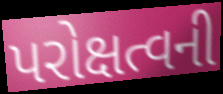
પરોક્ષત્વની